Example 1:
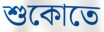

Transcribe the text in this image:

শুকোতে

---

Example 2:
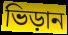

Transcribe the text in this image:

ভিড়ান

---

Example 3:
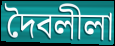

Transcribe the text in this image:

দৈবলীলা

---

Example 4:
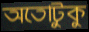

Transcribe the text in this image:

অতোটুকু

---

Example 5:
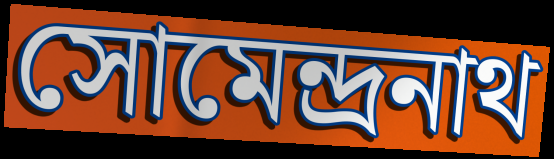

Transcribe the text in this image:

সোমেন্দ্রনাথ